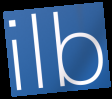
ilb